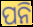
ପନି